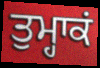
ਤੁਮ੍ਹਾਕਂ